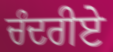
ਚੰਦਰੀਏ